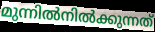
മുന്നിൽനിൽക്കുന്നത്